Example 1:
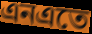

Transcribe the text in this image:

এনএতে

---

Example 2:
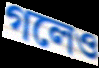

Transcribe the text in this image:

গলেও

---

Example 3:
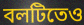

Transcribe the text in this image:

বলটিতেও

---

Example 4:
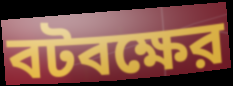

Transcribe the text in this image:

বটবক্ষের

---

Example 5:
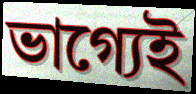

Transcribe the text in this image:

ভাগ্যেই